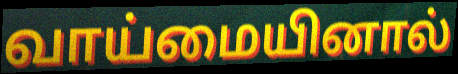
வாய்மையினால்